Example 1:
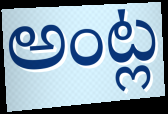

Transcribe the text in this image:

అంట్ల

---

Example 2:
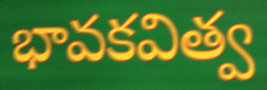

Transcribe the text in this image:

భావకవిత్వ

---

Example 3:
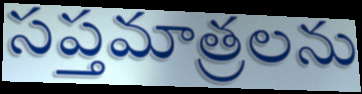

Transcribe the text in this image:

సప్తమాత్రలను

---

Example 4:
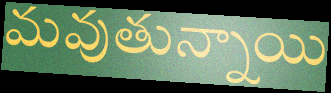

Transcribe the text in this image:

మవుతున్నాయి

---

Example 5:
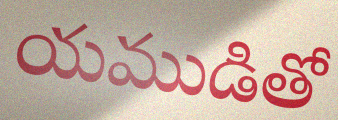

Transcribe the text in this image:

యముడితో